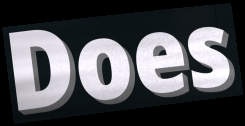
Does